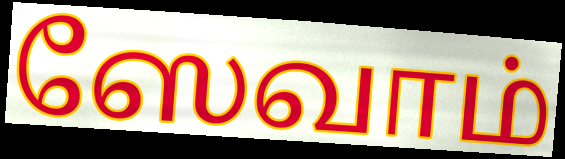
ஸேவாம்